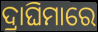
ଦ୍ରାଘିମାରେ